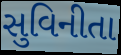
સુવિનીતા